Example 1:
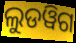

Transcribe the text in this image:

ଲୁଡୱିଗ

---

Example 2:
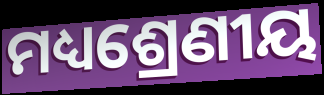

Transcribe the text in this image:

ମଧ୍ୟଶ୍ରେଣୀୟ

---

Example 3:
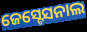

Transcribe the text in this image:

ଜେସ୍ଟେସନାଲ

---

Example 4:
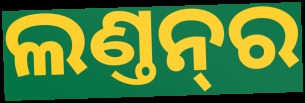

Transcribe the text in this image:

ଲଣ୍ତନ୍‌ର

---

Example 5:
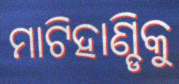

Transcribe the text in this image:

ମାଟିହାଣ୍ଡିକୁ